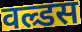
वल्र्डस